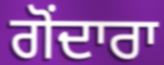
ਗੋਂਦਾਰਾ